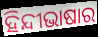
ହିନ୍ଦୀଭାଷାର